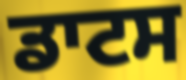
ਡਾਟਸ